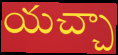
యచ్చా